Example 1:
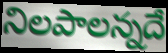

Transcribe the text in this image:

నిలపాలన్నదే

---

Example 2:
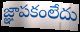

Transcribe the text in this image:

జ్ఞాపకంలేదు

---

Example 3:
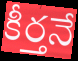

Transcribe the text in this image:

కీర్తనే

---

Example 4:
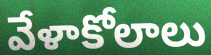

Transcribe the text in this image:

వేళాకోలాలు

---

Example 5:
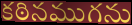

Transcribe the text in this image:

కఠినముగను